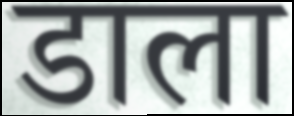
डाला